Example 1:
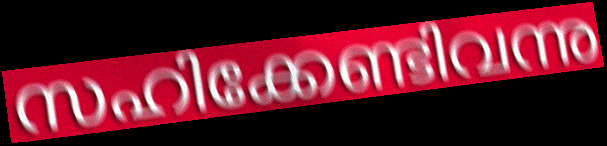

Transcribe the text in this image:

സഹിക്കേണ്ടിവന്നു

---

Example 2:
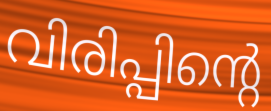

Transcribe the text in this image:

വിരിപ്പിന്റെ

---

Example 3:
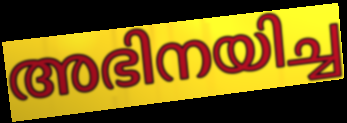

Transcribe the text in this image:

അഭിനയിച്ച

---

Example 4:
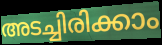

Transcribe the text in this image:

അടച്ചിരിക്കാം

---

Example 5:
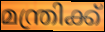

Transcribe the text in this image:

മന്ത്രിക്ക്